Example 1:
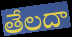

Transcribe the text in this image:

తేలదా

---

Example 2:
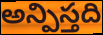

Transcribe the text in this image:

అన్పిస్తది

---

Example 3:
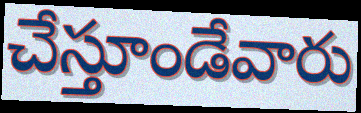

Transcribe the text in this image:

చేస్తూండేవారు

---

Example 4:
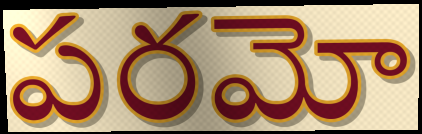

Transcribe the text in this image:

పరమో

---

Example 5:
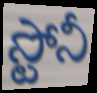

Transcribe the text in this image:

స్టోనీ